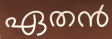
ഏതൻ